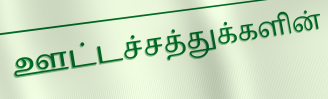
ஊட்டச்சத்துக்களின்